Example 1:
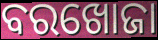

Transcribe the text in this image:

ବରଖୋଜା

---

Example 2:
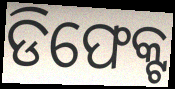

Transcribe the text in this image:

ଡିଫେକ୍ଟ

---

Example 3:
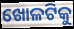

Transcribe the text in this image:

ଖୋଳଟିକୁ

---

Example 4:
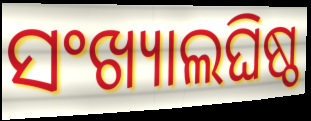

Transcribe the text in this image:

ସଂଖ୍ୟାଲଘିଷ୍ଠ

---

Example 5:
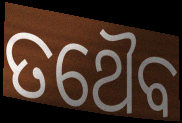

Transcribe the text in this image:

ତଥୈବ